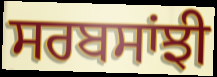
ਸਰਬਸਾਂਝੀ